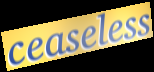
ceaseless